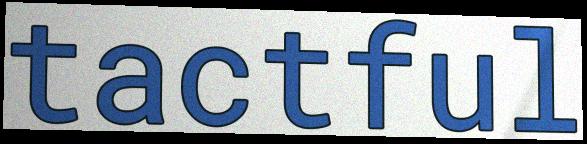
tactful